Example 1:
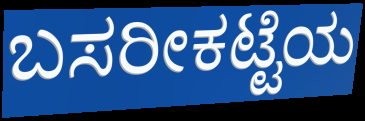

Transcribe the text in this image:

ಬಸರೀಕಟ್ಟೆಯ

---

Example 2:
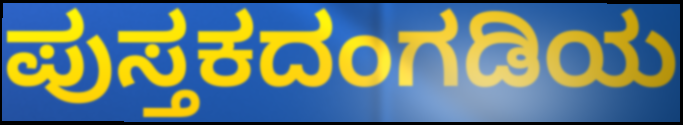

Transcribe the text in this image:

ಪುಸ್ತಕದಂಗಡಿಯ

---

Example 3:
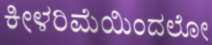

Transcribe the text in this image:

ಕೀಳರಿಮೆಯಿಂದಲೋ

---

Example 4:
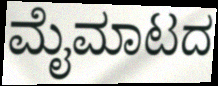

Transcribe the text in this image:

ಮೈಮಾಟದ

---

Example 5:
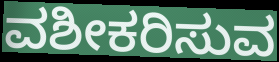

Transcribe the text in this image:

ವಶೀಕರಿಸುವ